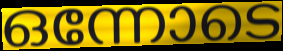
ഒന്നോടെ